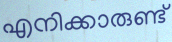
എനിക്കാരുണ്ട്